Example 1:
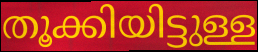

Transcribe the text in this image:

തൂക്കിയിട്ടുള്ള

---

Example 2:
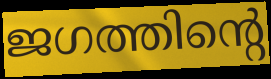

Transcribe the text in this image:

ജഗത്തിന്റെ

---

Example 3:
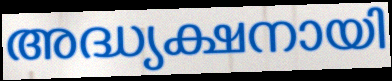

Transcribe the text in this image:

അദ്ധ്യക്ഷനായി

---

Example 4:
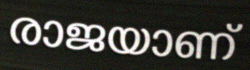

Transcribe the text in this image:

രാജയാണ്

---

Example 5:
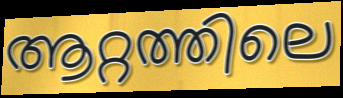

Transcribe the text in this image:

ആറ്റത്തിലെ